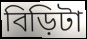
বিড়িটা